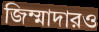
জিম্মাদারও